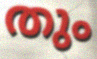
തും